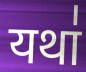
यथा॑